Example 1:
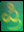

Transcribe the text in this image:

ಪ್ರಿ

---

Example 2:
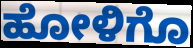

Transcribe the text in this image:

ಹೋಳಿಗೊ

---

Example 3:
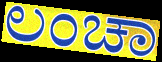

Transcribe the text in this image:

ಲಂಚಾ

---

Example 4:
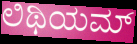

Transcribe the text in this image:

ಲಿಥಿಯಮ್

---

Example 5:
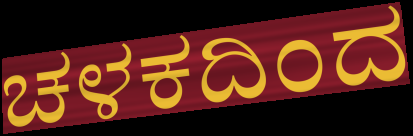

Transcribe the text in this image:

ಚಳಕದಿಂದ